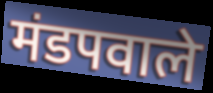
मंडपवाले